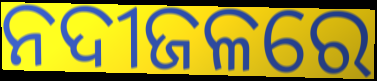
ନଦୀଜଳରେ